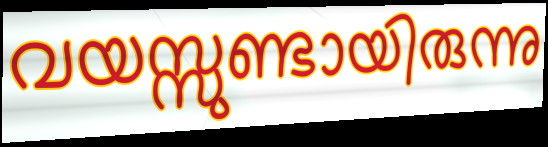
വയസ്സുണ്ടായിരുന്നു